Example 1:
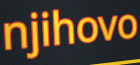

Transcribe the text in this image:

njihovo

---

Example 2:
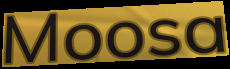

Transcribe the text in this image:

Moosa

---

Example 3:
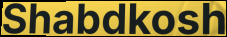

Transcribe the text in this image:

Shabdkosh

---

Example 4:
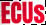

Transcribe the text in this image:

ECUs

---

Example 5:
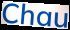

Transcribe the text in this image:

Chau